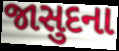
જાસુદના